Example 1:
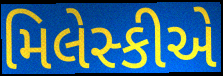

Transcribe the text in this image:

મિલેસ્કીએ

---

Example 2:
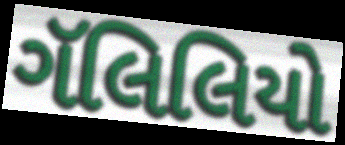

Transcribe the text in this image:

ગૅલિલિયો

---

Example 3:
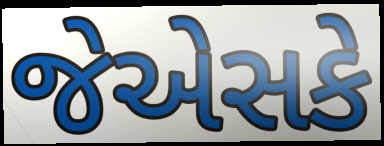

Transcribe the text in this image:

જેએસકે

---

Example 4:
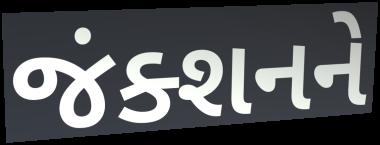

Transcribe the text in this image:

જંક્શનને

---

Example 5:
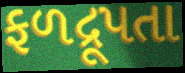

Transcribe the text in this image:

ફળદ્રૂપતા